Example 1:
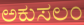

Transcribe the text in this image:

ಅಕುಸಲಂ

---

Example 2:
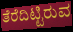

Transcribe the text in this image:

ತೆರೆದಿಟ್ಟಿರುವ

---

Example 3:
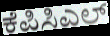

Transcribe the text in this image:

ಕೆಪಿಸಿಎಲ್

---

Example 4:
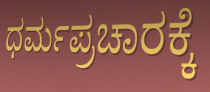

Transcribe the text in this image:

ಧರ್ಮಪ್ರಚಾರಕ್ಕೆ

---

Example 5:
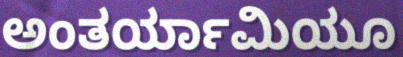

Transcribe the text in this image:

ಅಂತರ್ಯಾಮಿಯೂ